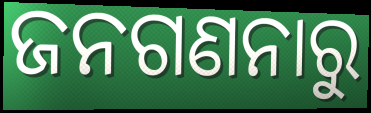
ଜନଗଣନାରୁ